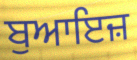
ਬੁਆਇਜ਼